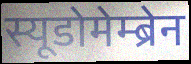
स्यूडोमेम्ब्रेन